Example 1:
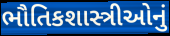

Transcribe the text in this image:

ભૌતિકશાસ્ત્રીઓનું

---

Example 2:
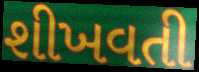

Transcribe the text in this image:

શીખવતી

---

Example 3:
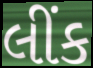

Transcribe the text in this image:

લીંક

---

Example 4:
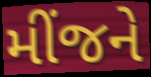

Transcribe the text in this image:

મીંજને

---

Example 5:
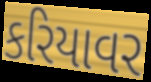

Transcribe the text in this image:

કરિયાવર